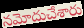
నమోదుచేశారు